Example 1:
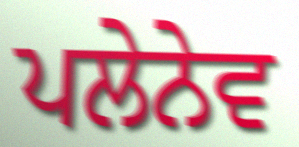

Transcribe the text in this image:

ਪਲੇਨੇਵ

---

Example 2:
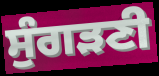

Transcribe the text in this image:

ਸੁੰਗੜਣੀ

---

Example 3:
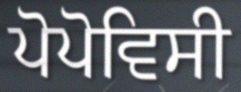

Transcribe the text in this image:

ਪੋਪੋਵਿਸੀ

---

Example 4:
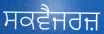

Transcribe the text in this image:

ਸਕਵੈਜਰਜ਼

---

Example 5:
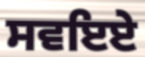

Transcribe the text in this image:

ਸਵਇਏ